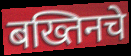
बख्तिनचे